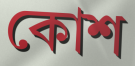
কোশ